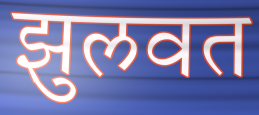
झुलवत